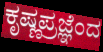
ಕೃಷ್ಣಪ್ರಜ್ಞೆಂದ